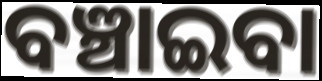
ବଞ୍ଚାଇବା